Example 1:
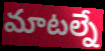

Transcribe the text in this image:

మాటల్నే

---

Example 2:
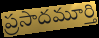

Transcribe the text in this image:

ప్రసాదమూర్తి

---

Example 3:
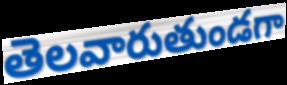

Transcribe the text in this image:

తెలవారుతుండగా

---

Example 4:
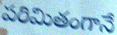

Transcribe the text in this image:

పరిమితంగానే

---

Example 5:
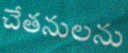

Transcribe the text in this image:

చేతనులను